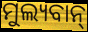
ମୁଲ୍ୟବାନ୍